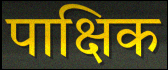
पाक्षिक